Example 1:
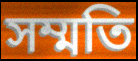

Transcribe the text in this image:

সম্মতি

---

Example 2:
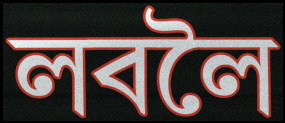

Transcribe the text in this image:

লবলৈ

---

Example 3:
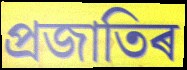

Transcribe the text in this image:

প্ৰজাতিৰ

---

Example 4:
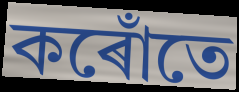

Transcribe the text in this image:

কৰোঁতে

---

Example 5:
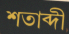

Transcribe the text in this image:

শতাব্দী